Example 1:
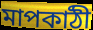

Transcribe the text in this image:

মাপকাঠী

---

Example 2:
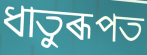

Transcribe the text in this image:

ধাতুৰূপত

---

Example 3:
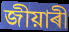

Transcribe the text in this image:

জীয়াৰী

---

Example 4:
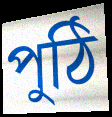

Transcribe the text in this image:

পুঠি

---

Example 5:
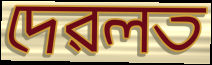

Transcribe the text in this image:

দেৱলত